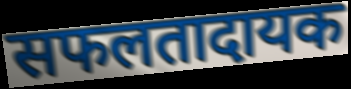
सफलतादायक